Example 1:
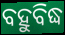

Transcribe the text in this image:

ବହୁବିଦ୍ଧ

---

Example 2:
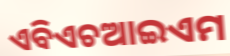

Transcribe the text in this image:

ଏବିଏଚଆଇଏମ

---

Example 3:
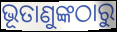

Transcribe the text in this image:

ଭୂତାଣୁଙ୍କଠାରୁ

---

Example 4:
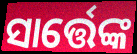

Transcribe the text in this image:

ସାର୍ତ୍ତେଙ୍କ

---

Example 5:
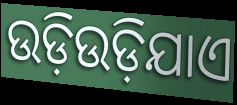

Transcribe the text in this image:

ଉଡ଼ିଉଡ଼ିଯାଏ